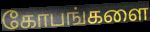
கோபங்களை